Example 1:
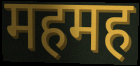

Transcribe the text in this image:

महमह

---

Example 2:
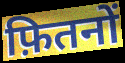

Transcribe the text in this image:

फ़ितनों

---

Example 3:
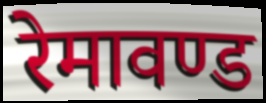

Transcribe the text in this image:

रेमावण्ड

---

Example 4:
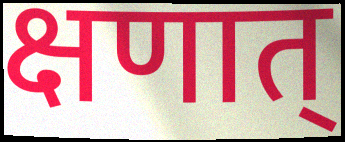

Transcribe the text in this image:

क्षणात्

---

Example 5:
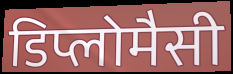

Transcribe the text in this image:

डिप्लोमैसी